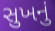
સુખનું